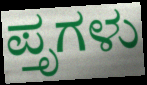
ಪ್ತೃಗಳು